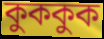
কুককুক